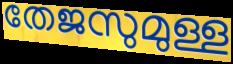
തേജസുമുള്ള